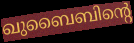
ഖുബൈബിന്റെ